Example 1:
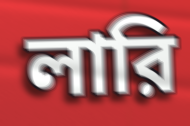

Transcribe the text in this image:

লারি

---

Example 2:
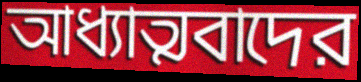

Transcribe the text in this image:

আধ্যাত্মবাদের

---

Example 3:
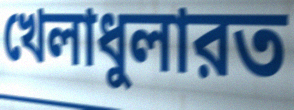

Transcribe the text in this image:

খেলাধুলারত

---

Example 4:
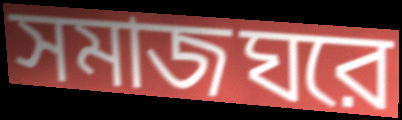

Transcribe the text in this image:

সমাজঘরে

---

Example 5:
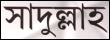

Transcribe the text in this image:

সাদুল্লাহ